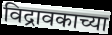
विद्रावकाच्या